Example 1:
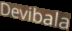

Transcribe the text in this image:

Devibala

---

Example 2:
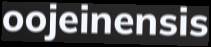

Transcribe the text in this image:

oojeinensis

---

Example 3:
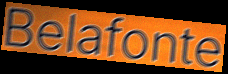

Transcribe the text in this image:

Belafonte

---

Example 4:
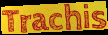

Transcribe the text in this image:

Trachis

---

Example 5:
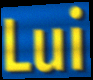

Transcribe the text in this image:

Lui